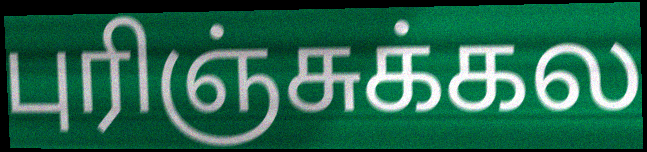
புரிஞ்சுக்கல